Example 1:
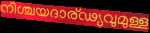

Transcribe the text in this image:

നിശ്ചയദാര്ഢ്യവുമുള്ള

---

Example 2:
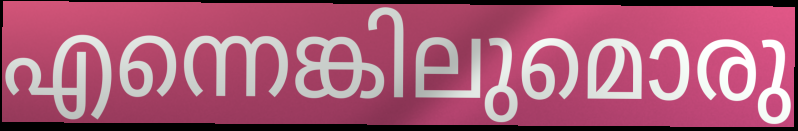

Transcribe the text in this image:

എന്നെങ്കിലുമൊരു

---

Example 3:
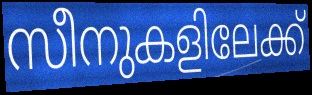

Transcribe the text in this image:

സീനുകളിലേക്ക്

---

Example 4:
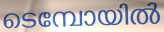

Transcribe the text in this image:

ടെമ്പോയിൽ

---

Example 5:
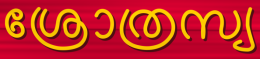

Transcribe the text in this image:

ശ്രോത്രസ്യ